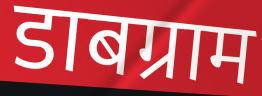
डाबग्राम